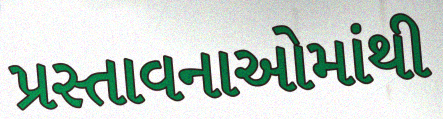
પ્રસ્તાવનાઓમાંથી